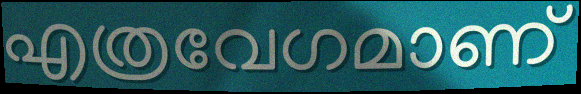
എത്രവേഗമാണ്